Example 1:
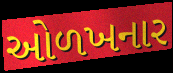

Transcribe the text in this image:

ઓળખનાર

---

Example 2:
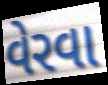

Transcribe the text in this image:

વેરવા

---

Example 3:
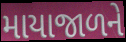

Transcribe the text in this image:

માયાજાળને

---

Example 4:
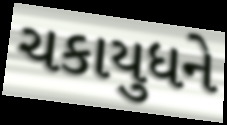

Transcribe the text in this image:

ચકાયુધને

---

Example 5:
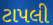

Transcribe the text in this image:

ટાપલી